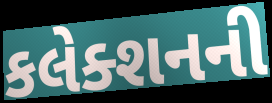
કલેક્શનની